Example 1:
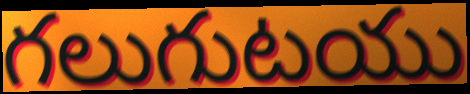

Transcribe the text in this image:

గలుగుటయు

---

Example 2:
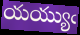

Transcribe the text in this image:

యయ్యుఁ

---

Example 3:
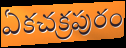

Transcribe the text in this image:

ఏకచక్రపురం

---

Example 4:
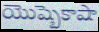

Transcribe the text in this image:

యొష్బెకాషా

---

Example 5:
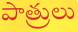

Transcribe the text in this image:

పాత్రులు